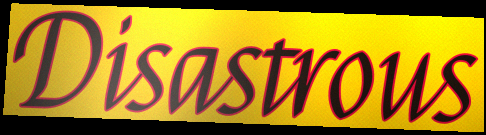
Disastrous